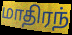
மாதிரந்